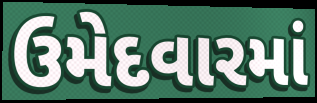
ઉમેદવારમાં